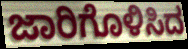
ಜಾರಿಗೊಳಿಸಿದ